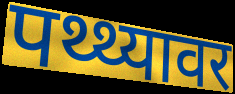
पथ्थ्यावर